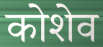
कोशेव